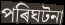
পৰিঘটনা